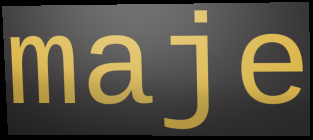
maje